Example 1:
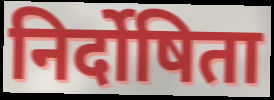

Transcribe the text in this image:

निर्दोषिता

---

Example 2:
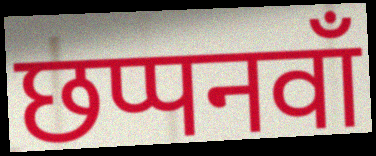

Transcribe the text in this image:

छप्पनवाँ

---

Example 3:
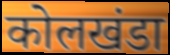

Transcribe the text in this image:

कोलखंडा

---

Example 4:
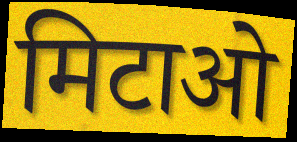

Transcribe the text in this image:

मिटाओ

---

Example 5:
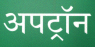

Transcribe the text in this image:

अपट्रॉन